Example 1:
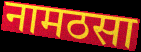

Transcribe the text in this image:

नामठसा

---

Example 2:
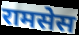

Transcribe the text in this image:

रामसेस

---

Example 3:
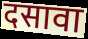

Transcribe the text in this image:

दसावा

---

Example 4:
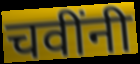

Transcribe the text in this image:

चवींनी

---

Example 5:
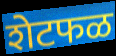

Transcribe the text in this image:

शेटफळ